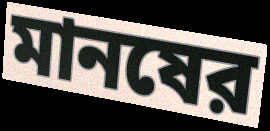
মানষের